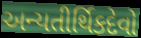
અન્યતીર્થિકદેવો